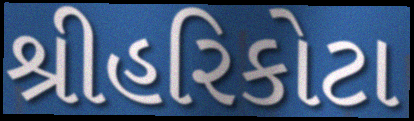
શ્રીહરિકોટા